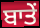
ਬਾਤੇਂ